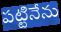
పట్టినేను